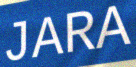
JARA